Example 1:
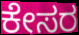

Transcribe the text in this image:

ಕೇಸರ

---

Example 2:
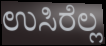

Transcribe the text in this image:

ಉಸಿರೆಲ್ಲ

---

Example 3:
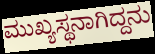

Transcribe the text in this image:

ಮುಖ್ಯಸ್ಥನಾಗಿದ್ದನು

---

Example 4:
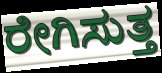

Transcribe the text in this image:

ರೇಗಿಸುತ್ತ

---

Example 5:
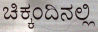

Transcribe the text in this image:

ಚಿಕ್ಕಂದಿನಲ್ಲಿ